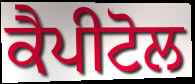
ਕੈਪੀਟੋਲ